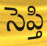
సెప్తి